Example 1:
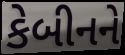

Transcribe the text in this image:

કેબીનને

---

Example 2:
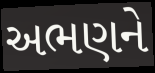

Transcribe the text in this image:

અભણને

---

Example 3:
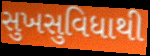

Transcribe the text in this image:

સુખસુવિધાથી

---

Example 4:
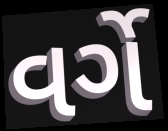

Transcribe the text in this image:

વર્ગે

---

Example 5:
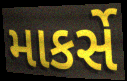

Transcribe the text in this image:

માકર્સે